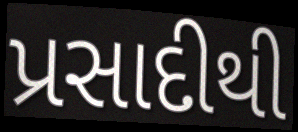
પ્રસાદીથી